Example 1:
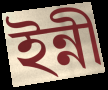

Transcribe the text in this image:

ইন্নী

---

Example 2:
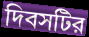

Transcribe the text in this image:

দিবসটির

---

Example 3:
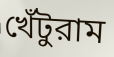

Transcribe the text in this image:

খেঁটুরাম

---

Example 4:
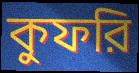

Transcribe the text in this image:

কুফরি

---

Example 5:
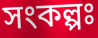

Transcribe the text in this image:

সংকল্পঃ